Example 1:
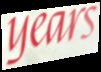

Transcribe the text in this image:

years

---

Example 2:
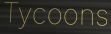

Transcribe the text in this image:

Tycoons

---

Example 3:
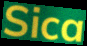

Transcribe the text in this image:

Sica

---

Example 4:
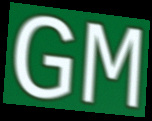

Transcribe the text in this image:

GM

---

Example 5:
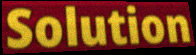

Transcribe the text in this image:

Solution